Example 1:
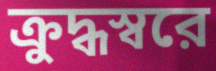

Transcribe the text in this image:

ক্রুদ্ধস্বরে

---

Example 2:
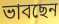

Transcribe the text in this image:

ভাবছেন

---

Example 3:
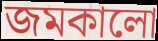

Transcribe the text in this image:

জমকালো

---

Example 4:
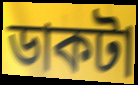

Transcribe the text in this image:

ডাকটা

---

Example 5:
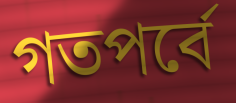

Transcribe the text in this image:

গতপর্বে